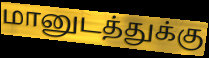
மானுடத்துக்கு